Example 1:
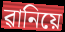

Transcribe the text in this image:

ৱানিয়ে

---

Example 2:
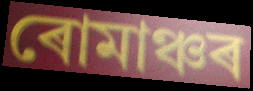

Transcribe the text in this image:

ৰোমাঞ্চৰ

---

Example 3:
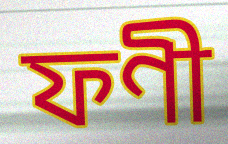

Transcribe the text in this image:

ফণী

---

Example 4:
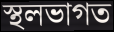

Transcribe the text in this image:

স্থলভাগত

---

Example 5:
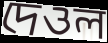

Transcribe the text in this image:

দেওল